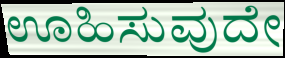
ಊಹಿಸುವುದೇ